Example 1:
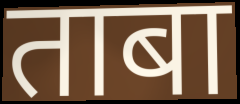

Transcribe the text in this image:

ताबा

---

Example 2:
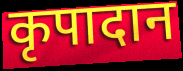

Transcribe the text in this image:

कृपादान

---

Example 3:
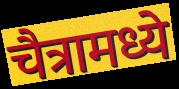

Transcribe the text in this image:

चैत्रामध्ये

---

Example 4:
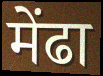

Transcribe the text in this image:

मेंढा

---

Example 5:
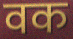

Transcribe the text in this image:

वक